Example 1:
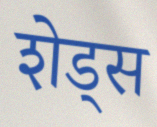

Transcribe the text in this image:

शेड्स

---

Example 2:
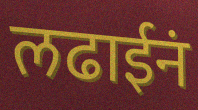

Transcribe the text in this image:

लढाईनं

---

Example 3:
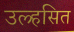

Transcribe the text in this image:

उल्हसित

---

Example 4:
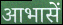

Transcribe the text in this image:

आभासें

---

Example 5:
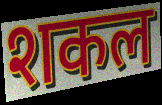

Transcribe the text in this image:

शकल